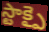
స్టాక్పై